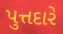
પુત્તદારે